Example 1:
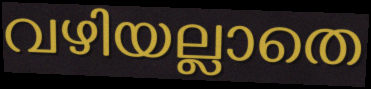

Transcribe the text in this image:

വഴിയല്ലാതെ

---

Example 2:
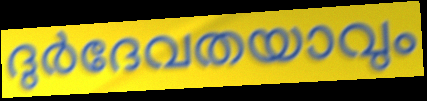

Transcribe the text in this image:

ദുർദേവതയാവും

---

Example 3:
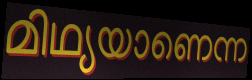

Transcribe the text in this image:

മിഥ്യയാണെന്ന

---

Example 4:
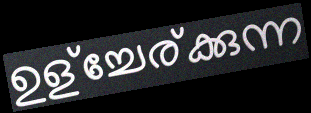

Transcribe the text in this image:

ഉള്ച്ചേര്ക്കുന്ന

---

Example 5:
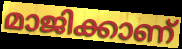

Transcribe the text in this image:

മാജിക്കാണ്